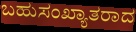
ಬಹುಸಂಖ್ಯಾತರಾದ